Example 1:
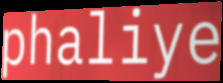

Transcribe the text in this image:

phaliye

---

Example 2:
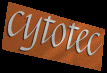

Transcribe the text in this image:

cytotec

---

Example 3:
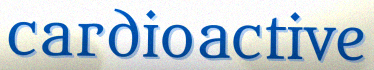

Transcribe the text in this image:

cardioactive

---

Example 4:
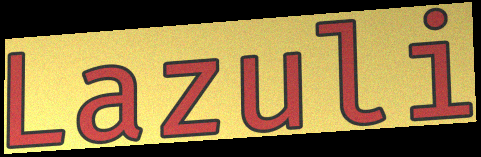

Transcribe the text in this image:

Lazuli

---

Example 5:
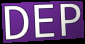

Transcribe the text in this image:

DEP